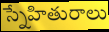
స్నేహితురాలు